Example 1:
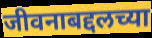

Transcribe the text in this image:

जीवनाबद्दलच्या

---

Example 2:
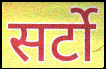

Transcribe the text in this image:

सर्टो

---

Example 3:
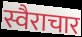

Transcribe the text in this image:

स्वैराचार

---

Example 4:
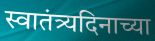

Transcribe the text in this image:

स्वातंत्र्यदिनाच्या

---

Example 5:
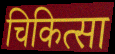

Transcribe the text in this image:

चिकित्सा